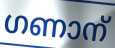
ഗണാന്